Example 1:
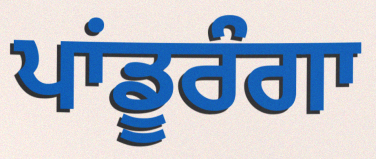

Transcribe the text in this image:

ਪਾਂਡੂਰੰਗਾ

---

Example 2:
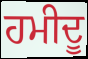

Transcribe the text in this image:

ਹਮੀਦੂ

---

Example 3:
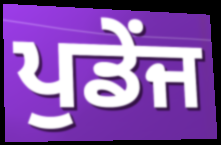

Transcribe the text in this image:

ਪੁਡੇਂਜ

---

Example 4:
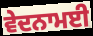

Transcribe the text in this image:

ਵੇਦਨਾਮਈ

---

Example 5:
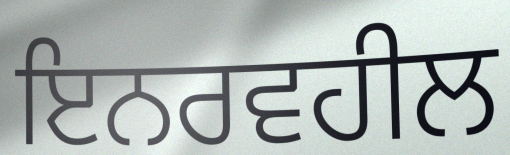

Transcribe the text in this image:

ਇਨਰਵਹੀਲ